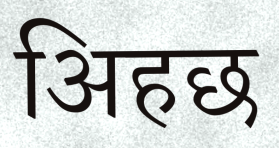
अिहछ